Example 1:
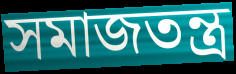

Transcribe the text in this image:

সমাজতন্ত্র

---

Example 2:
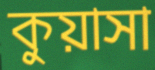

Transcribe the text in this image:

কুয়াসা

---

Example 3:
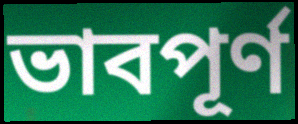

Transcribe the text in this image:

ভাবপূর্ণ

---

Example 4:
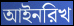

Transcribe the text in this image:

আইনরিখ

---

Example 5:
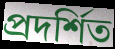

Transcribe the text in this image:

প্রদর্শিত